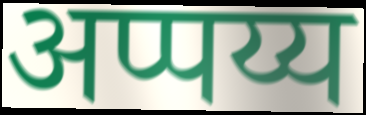
अप्पय्य